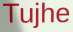
Tujhe